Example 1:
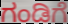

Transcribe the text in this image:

ಗಂಡಿಗೆ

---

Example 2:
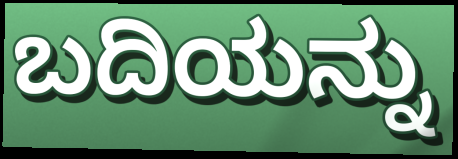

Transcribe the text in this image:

ಬದಿಯನ್ನು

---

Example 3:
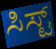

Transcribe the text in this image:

ಸಿಸ್ಟ್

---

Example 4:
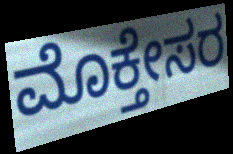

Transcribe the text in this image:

ಮೊಕ್ತೇಸರ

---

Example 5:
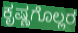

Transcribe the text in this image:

ಕೃಷ್ಣಗೊಲ್ಲರ